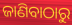
ଜାଣିବାଠାରୁ